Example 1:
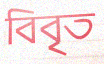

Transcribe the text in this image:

বিবৃত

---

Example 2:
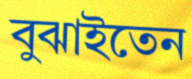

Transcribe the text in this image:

বুঝাইতেন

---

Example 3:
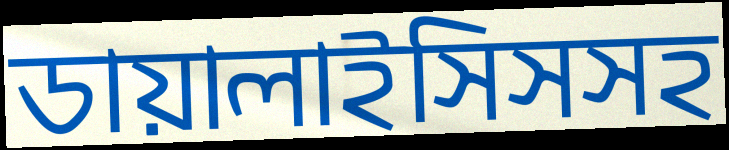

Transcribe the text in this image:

ডায়ালাইসিসসহ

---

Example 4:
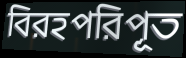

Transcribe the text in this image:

বিরহপরিপূত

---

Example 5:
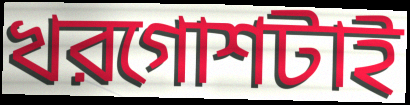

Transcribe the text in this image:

খরগোশটাই